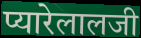
प्यारेलालजी